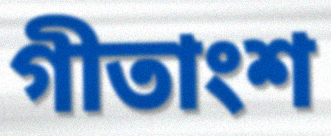
গীতাংশ